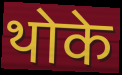
थोके